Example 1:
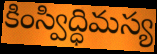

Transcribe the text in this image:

కింస్విద్ధిమస్య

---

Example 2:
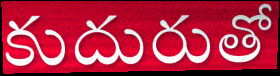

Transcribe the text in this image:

కుదురుతో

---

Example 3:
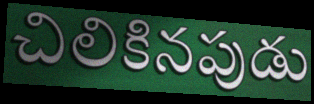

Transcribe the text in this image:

చిలికినపుడు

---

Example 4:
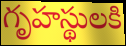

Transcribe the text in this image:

గృహస్థులకి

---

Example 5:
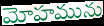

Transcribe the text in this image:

మోహమును